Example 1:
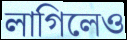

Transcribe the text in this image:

লাগিলেও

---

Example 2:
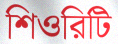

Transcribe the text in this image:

শিওরিটি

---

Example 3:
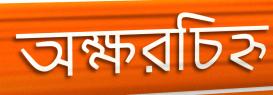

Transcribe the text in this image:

অক্ষরচিহ্ন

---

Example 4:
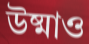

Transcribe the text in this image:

উষ্মাও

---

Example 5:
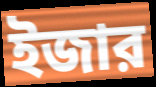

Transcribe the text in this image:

ইজার